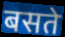
बसते